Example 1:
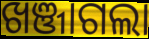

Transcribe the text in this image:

ଖଞ୍ଜାଗଲା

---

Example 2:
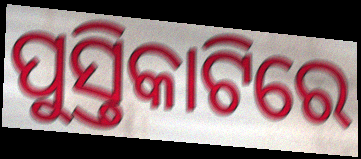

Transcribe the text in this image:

ପୁସ୍ତିକାଟିରେ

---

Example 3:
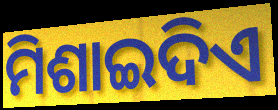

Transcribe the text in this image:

ମିଶାଇଦିଏ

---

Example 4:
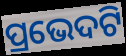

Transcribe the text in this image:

ପ୍ରଭେଦଟି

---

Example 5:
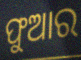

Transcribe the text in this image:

ଫୁଆର